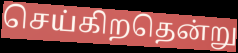
செய்கிறதென்று